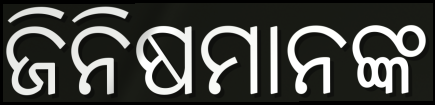
ଜିନିଷମାନଙ୍କ